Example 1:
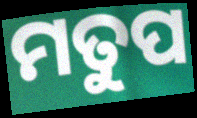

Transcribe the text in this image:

ମତୁପ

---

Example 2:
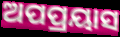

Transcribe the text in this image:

ଅପପ୍ରୟାସ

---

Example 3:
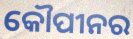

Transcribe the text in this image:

କୌପୀନର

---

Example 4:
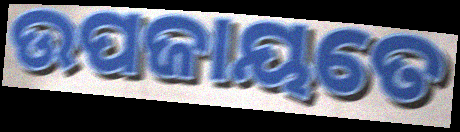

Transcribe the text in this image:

ଉପଜାୟତେ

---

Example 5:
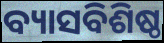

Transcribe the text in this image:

ବ୍ୟାସବିଶିଷ୍ଠ